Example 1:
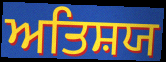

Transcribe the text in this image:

ਅਤਿਸ਼ਯ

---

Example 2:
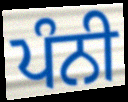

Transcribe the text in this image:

ਪੰਨੀ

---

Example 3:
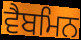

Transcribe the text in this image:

ਵੈਬਮਿਨ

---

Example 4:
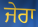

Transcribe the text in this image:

ਜੇਰਾ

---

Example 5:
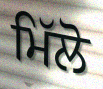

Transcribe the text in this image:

ਮਿੱਲੋ